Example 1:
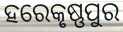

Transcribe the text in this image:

ହରେକୃଷ୍ଣପୁର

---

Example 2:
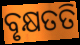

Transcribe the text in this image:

ବୃକ୍ଷତତି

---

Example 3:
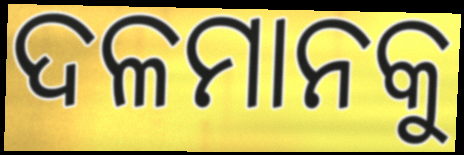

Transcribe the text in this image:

ଦଳମାନକୁ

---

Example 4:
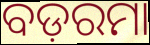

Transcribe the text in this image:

ବଡ଼ରମା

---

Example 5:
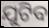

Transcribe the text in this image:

ଯୁଟିବ